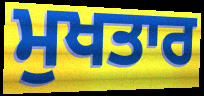
ਮੁਖਤਾਰ